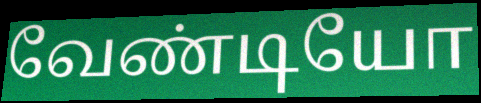
வேண்டியோ